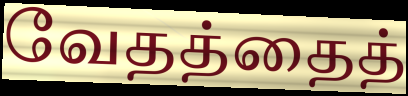
வேதத்தைத்